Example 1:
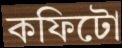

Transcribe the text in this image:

কফিটো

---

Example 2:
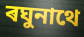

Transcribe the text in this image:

ৰঘুনাথে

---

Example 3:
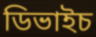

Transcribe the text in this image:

ডিভাইচ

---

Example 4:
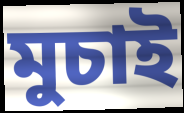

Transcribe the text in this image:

মুচাই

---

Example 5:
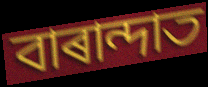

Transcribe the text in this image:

বাৰান্দাত